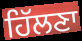
ਹਿੱਲਣਾ